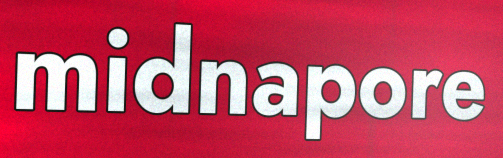
midnapore